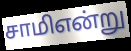
சாமிஎன்று